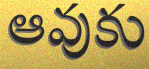
ఆవుకు